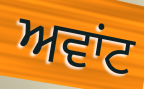
ਅਵਾਂਟ